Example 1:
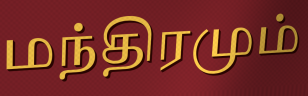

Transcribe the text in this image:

மந்திரமும்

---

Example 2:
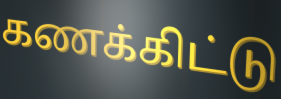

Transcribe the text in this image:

கணக்கிட்டு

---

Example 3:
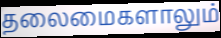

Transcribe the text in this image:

தலைமைகளாலும்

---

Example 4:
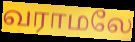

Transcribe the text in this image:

வராமலே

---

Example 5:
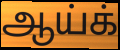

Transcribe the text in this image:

ஆய்க்